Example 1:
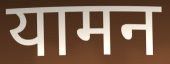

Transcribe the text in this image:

यामन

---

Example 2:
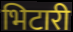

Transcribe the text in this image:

भिटारी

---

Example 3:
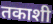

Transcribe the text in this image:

तकाशी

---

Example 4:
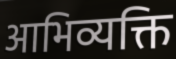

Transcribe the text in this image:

आभिव्यक्ति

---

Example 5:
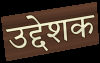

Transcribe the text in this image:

उद्देशक